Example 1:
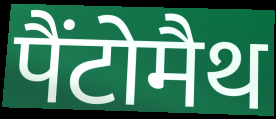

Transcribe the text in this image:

पैंटोमैथ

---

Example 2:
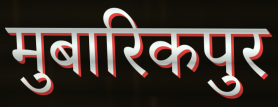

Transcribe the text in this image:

मुबारिकपुर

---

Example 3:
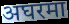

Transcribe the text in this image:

अघरमा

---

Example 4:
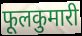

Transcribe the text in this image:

फूलकुमारी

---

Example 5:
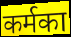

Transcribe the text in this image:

कर्मका